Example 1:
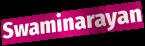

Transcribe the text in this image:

Swaminarayan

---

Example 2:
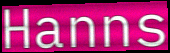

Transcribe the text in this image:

Hanns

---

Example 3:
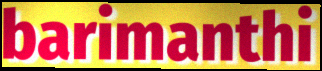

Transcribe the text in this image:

barimanthi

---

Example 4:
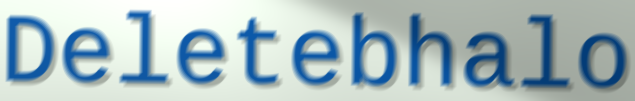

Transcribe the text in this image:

Deletebhalo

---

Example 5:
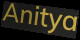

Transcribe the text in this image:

Anitya